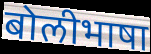
बोलीभाषा